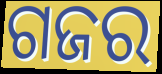
ଗଜର